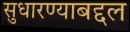
सुधारण्याबद्दल